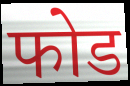
फोड